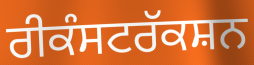
ਰੀਕੰਸਟਰੱਕਸ਼ਨ